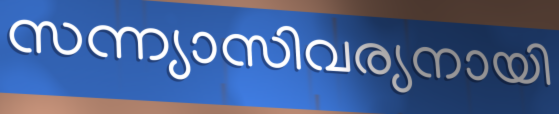
സന്ന്യാസിവര്യനായി